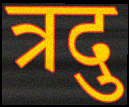
त्रदु